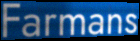
Farmans